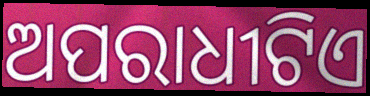
ଅପରାଧୀଟିଏ